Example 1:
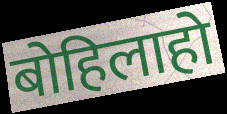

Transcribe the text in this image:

बोहिलाहो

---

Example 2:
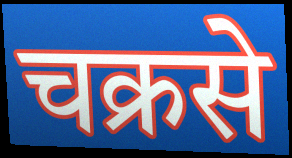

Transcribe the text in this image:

चक्रसे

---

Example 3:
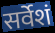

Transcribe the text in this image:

सर्वेशं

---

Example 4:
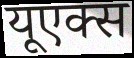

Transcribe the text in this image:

यूएक्स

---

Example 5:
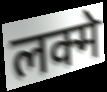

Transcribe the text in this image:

लक्मे